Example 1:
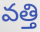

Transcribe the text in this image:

వత్తి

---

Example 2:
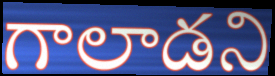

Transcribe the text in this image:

గాలాడని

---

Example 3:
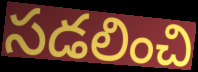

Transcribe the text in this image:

సడలించి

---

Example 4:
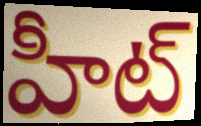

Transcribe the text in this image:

హీట్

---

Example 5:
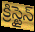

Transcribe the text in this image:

క్రిస్టైన్